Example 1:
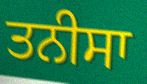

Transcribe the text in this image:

ਤਨੀਸਾ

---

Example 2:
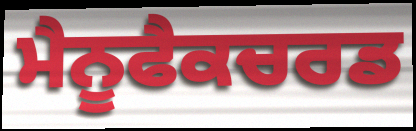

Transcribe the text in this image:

ਮੈਨੂਫੈਕਚਰਡ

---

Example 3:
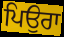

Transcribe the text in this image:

ਪਿਉਰਾ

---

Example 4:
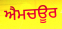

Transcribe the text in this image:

ਐਮਚਊਰ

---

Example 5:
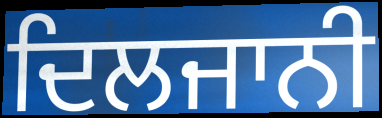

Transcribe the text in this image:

ਦਿਲਜਾਨੀ